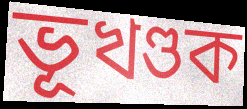
ভূখণ্ডক